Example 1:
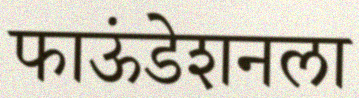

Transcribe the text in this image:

फाऊंडेशनला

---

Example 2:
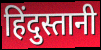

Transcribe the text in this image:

हिंदुस्तानी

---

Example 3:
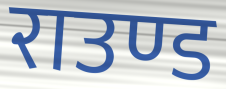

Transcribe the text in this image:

राउण्ड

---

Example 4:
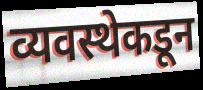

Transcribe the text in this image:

व्यवस्थेकडून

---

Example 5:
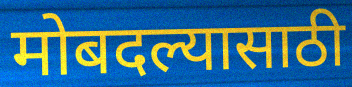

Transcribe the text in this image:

मोबदल्यासाठी